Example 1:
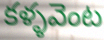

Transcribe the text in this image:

కళ్ళవెంట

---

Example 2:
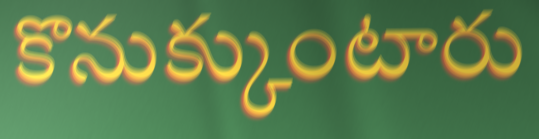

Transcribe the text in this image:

కొనుక్కుంటారు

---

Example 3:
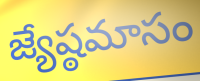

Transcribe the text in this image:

జ్యేష్ఠమాసం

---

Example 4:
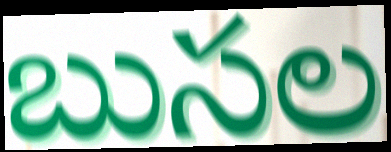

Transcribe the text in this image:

బుసల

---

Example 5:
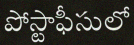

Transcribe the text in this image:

పోస్టాఫీసులో